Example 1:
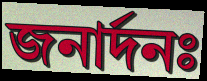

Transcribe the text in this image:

জনার্দনঃ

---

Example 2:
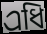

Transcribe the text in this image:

এধি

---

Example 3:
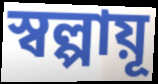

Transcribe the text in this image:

স্বল্পায়ূ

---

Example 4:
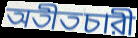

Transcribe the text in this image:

অতীতচারী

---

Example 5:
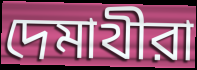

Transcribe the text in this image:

দেমাথীরা